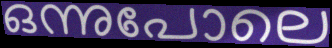
ഒന്നുപോലെ